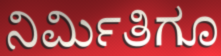
ನಿರ್ಮಿತಿಗೂ